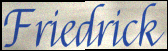
Friedrick